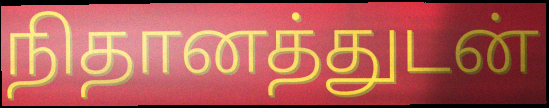
நிதானத்துடன்